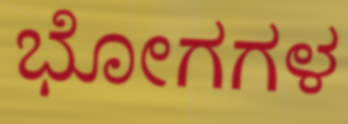
ಭೋಗಗಳ